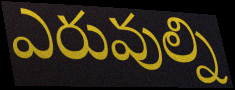
ఎరువుల్ని